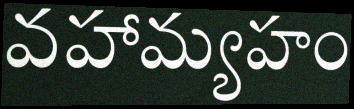
వహామ్యహం